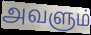
அவளும்